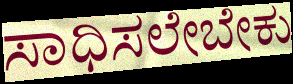
ಸಾಧಿಸಲೇಬೇಕು